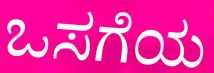
ಒಸಗೆಯ